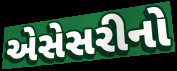
એસેસરીનો